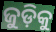
ଜୁଡ଼ିକୁ